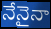
నేనైనా